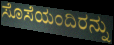
ಸೊಸೆಯಂದಿರನ್ನು